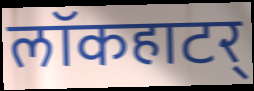
लॉकहाटर्